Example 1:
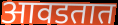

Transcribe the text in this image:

आवडतात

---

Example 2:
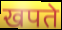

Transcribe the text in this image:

खपते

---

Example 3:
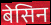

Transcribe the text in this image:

बेसिन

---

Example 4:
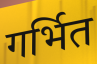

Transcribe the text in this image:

गर्भित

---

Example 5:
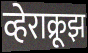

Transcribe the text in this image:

व्हेराक्रूझ